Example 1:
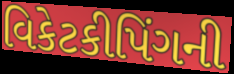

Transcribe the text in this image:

વિકેટકીપિંગની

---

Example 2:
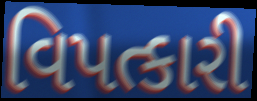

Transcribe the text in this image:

વિપત્કારી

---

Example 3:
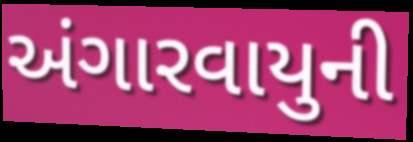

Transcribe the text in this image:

અંગારવાયુની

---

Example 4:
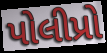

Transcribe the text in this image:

પોલીપ્રો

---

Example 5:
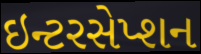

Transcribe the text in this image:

ઇન્ટરસેપ્શન